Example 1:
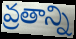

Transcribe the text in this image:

వ్రతాన్ని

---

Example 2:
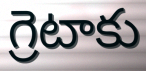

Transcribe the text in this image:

గ్రెటాకు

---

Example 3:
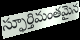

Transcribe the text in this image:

స్ఫూర్తిమంతమైన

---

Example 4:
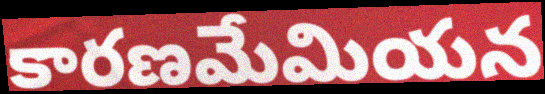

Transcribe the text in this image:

కారణమేమియన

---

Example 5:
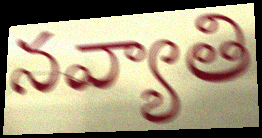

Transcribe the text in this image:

నవ్యాతి